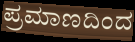
ಪ್ರಮಾಣದಿಂದ